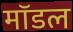
मॉडल